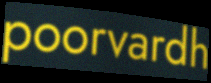
poorvardh